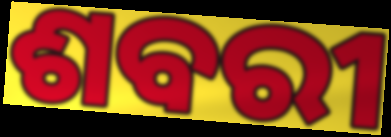
ଶବରୀ